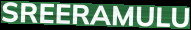
SREERAMULU